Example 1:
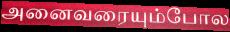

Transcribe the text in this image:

அனைவரையும்போல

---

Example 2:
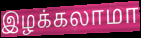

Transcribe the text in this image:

இழக்கலாமா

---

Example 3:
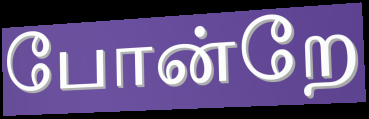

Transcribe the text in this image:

போன்றே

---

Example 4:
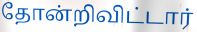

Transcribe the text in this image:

தோன்றிவிட்டார்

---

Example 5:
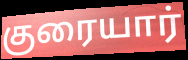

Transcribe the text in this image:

குரையார்